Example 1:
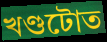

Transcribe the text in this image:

খণ্ডটোত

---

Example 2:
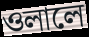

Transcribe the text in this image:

ওলালে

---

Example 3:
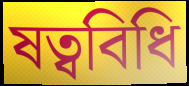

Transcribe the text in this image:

ষত্ববিধি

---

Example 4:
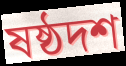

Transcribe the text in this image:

ষষ্ঠদশ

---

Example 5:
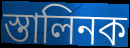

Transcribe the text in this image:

স্তালিনক